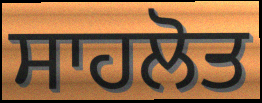
ਸਾਹਲੋਤ